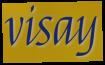
visay